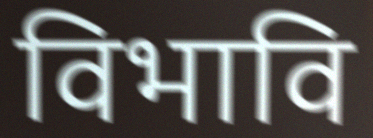
विभावि